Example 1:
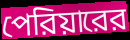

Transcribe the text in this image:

পেরিয়ারের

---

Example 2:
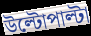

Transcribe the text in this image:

উল্টোপাল্টা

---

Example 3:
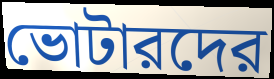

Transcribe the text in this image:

ভোটারদের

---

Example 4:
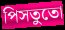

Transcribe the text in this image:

পিসতুতো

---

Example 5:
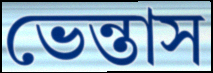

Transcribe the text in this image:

ভেন্তাস